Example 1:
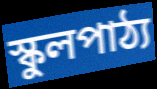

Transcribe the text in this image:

স্কুলপাঠ্য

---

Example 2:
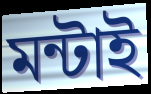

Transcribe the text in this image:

মন্টাই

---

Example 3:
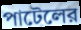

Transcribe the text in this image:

পাটেলের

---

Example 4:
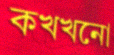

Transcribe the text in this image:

কখখনো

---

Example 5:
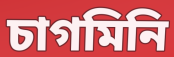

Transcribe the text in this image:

চাগমিনি